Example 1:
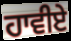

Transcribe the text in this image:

ਹਾਵੀਏ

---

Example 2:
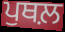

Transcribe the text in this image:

ਪੁਥਲ਼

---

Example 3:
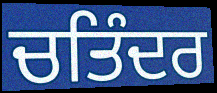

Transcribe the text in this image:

ਚਤਿੰਦਰ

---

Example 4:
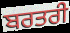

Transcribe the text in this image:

ਬਰਤਰੀ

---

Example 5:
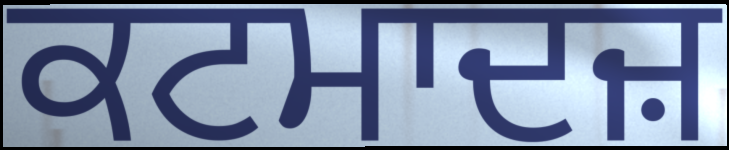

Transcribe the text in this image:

ਕਟਮਾਦਜ਼